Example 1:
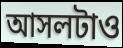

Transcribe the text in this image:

আসলটাও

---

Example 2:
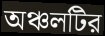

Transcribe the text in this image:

অঞ্চলটির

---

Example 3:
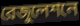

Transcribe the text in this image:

রেজুলেশনে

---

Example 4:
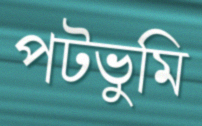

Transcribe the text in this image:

পটভুমি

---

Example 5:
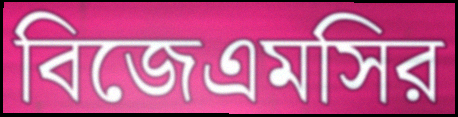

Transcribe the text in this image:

বিজেএমসির